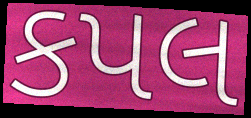
કપલ